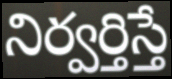
నిర్వర్తిస్తే